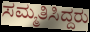
ಸಮ್ಮತಿಸಿದ್ದರು